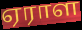
ஏராள